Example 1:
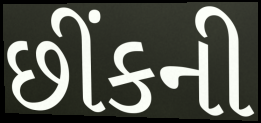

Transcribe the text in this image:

છીંકની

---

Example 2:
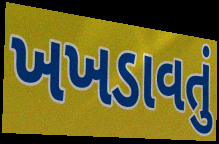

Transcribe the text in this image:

ખખડાવતું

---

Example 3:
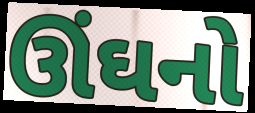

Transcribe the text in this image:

ઊંઘનો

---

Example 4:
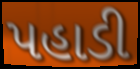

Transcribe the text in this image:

પહાડી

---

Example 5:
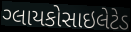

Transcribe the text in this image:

ગ્લાયકોસાઇલેટેડ